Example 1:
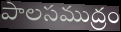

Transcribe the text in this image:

పాలసముద్రం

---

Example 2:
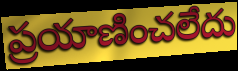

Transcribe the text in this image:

ప్రయాణించలేదు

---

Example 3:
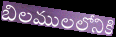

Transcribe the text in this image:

బిలములలోనికి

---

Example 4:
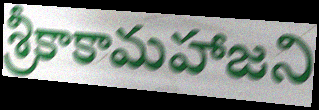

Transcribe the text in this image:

శ్రీకాకామహాజని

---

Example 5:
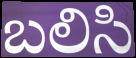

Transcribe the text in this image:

బలిసి